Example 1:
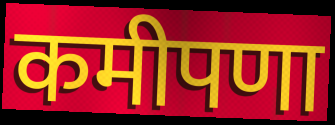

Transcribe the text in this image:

कमीपणा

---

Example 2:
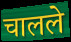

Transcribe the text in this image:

चालले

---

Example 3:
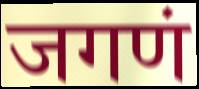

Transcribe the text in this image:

जगणं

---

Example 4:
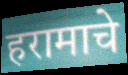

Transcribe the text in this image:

हरामाचे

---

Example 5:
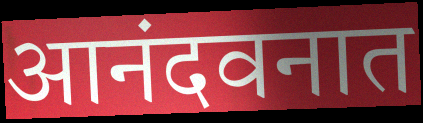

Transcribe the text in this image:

आनंदवनात